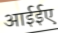
आईईए